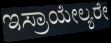
ಇಸ್ರಾಯೇಲ್ಯರೇ